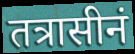
तत्रासीनं